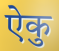
ऐकु